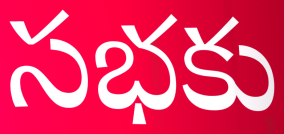
సభకు